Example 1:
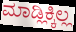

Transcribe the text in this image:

ಮಾಡ್ಲಿಕ್ಕಿಲ್ಲ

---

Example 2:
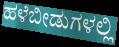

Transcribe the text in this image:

ಹಳೆಬೀಡುಗಳಲ್ಲಿ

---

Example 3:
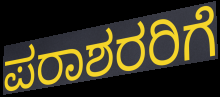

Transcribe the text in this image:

ಪರಾಶರರಿಗೆ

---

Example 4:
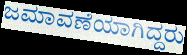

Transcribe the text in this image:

ಜಮಾವಣೆಯಾಗಿದ್ದರು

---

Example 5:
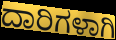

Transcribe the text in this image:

ದಾರಿಗಳಾಗಿ